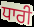
ਧਾਰੀ